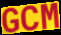
GCM